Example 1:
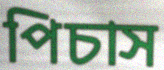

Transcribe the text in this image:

পিচাস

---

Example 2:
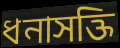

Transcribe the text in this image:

ধনাসক্তি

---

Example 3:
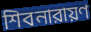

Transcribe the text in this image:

শিবনারায়ণ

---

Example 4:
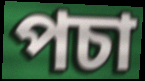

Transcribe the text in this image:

পচা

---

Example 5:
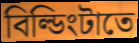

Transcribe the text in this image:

বিল্ডিংটাতে